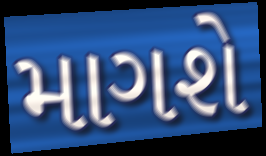
માગશે